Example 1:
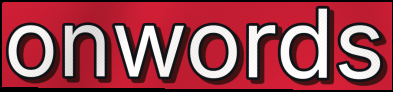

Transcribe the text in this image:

onwords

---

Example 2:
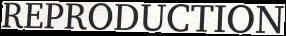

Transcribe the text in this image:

REPRODUCTION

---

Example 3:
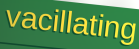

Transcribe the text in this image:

vacillating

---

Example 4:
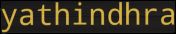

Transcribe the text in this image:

yathindhra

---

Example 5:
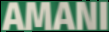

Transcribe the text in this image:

AMANI